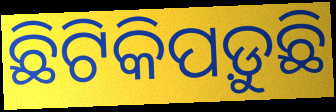
ଛିଟିକିପଡ଼ୁଛି